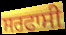
ਸਰਫਾਸੀ